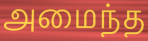
அமைந்த